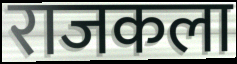
राजकला